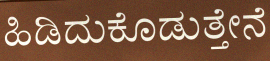
ಹಿಡಿದುಕೊಡುತ್ತೇನೆ